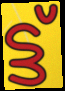
ട്ട്